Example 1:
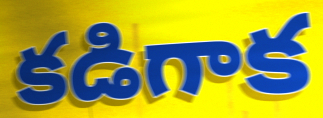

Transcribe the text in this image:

కడిగాక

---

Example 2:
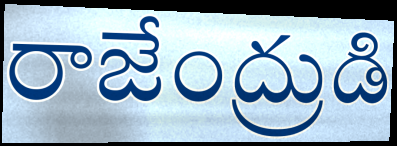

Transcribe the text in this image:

రాజేంద్రుడి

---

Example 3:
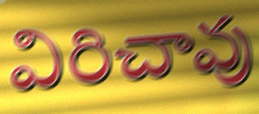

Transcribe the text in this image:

విరిచావు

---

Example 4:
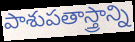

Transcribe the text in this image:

పాశుపతాస్త్రాన్ని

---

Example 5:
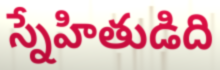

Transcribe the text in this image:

స్నేహితుడిది